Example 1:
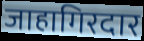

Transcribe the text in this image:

जाहागिरदार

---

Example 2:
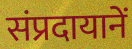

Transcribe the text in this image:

संप्रदायानें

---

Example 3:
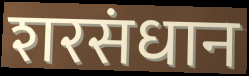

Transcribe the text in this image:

शरसंधान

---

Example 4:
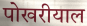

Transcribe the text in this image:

पोखरीयाल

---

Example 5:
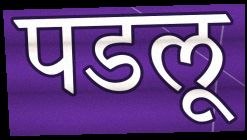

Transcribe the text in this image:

पडलू